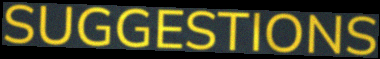
SUGGESTIONS